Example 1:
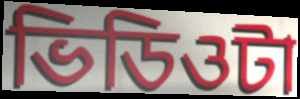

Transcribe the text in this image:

ভিডিওটা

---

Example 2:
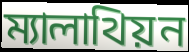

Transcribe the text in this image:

ম্যালাথিয়ন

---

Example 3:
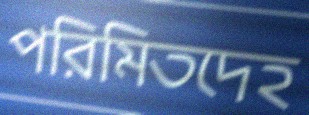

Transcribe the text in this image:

পরিমিতদেহ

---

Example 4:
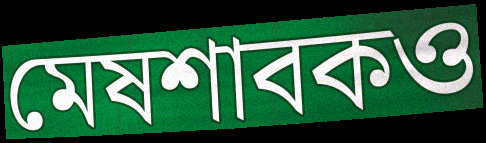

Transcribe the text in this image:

মেষশাবকও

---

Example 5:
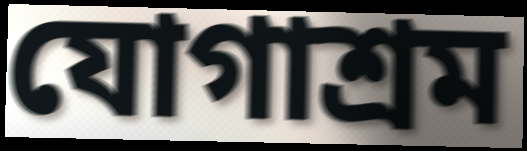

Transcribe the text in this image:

যোগাশ্রম